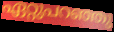
ഏറ്റുപറഞ്ഞു